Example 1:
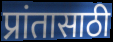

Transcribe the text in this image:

प्रांतासाठी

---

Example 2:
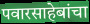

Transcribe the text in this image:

पवारसाहेबांचा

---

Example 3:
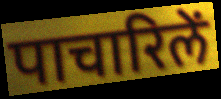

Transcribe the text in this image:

पाचारिलें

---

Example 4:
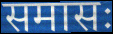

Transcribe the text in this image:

समासः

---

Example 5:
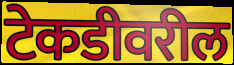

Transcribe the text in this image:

टेकडीवरील